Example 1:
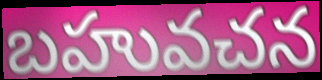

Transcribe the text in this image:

బహువచన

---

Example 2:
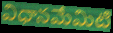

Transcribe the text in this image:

విధానమేమిటి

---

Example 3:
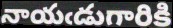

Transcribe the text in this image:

నాయఁడుగారికి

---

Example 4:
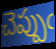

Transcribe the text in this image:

చెప్పుఁ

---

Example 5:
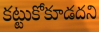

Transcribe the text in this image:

కట్టుకోకూడదని